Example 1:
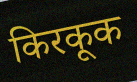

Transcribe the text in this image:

किरकूक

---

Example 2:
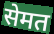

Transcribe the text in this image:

सेमत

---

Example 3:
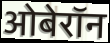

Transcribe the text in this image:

ओबेरॉन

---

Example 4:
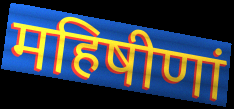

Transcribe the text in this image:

महिषीणां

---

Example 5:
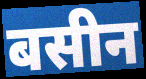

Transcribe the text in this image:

बसीन